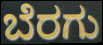
ಬೆರಗು